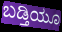
ಬಡ್ತಿಯೂ